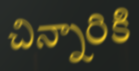
చిన్నారికి